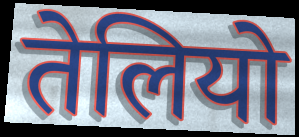
तेलियो